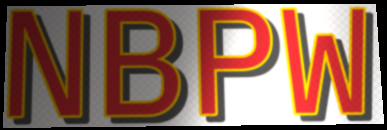
NBPW